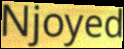
Njoyed